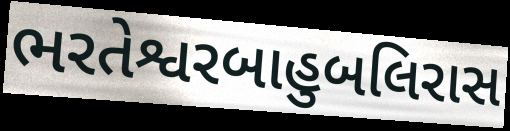
ભરતેશ્વરબાહુબલિરાસ